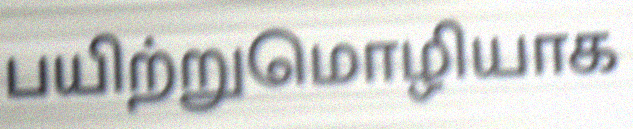
பயிற்றுமொழியாக